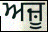
ਅਜ਼ੂ